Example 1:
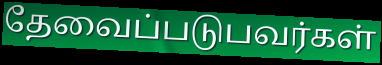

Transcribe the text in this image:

தேவைப்படுபவர்கள்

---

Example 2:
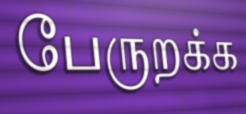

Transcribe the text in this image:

பேருறக்க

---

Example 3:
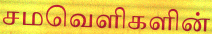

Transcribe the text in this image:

சமவெளிகளின்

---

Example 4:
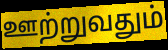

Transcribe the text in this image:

ஊற்றுவதும்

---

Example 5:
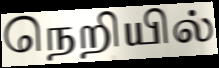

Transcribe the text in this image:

நெறியில்